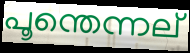
പൂന്തെന്നല്